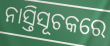
ନାସ୍ତିସୂଚକରେ